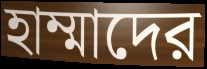
হাম্মাদের